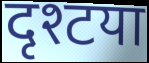
दृश्टया